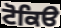
ਟੋਕਿੳ